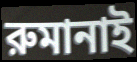
রুমানাই